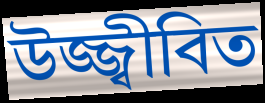
উজ্জ্বীবিত